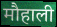
मौहाली